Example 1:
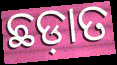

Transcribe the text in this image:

ଛଡ଼ାତ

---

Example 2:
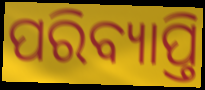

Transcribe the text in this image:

ପରିବ୍ୟାପ୍ତି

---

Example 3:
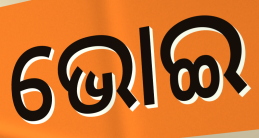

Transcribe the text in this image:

ଭୋଇ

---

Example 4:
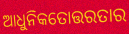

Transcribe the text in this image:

ଆଧୁନିକତୋତ୍ତରତାର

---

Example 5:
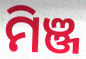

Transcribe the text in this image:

ମିଞ୍ଜ